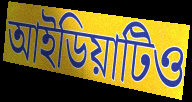
আইডিয়াটিও